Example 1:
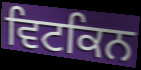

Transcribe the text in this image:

ਵਿਟਕਿਨ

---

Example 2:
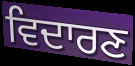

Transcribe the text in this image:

ਵਿਦਾਰਣ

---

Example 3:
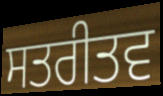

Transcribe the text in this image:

ਸਤਰੀਤਵ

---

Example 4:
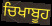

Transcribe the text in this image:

ਚਿਖਾਬੂਹ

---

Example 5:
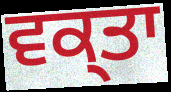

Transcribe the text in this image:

ਵਕ੍ਤਾ